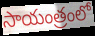
సాయంత్రంలో